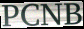
PCNB